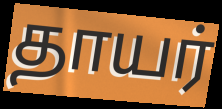
தாயர்